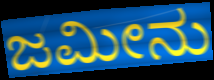
ಜಮೀನು